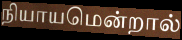
நியாயமென்றால்